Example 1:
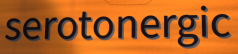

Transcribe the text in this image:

serotonergic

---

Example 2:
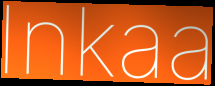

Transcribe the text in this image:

Inkaa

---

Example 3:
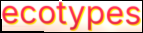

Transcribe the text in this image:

ecotypes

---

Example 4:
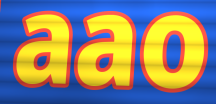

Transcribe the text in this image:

aao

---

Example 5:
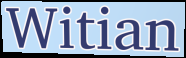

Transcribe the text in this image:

Witian